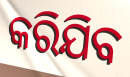
କରିଯିବ